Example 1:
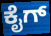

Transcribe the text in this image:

ಕೈಗ್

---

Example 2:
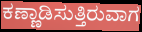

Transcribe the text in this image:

ಕಣ್ಣಾಡಿಸುತ್ತಿರುವಾಗ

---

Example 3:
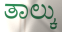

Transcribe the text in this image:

ತಾಲ್ಕು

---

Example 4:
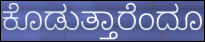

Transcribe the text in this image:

ಕೊಡುತ್ತಾರೆಂದೂ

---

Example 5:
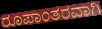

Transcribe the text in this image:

ರೂಪಾಂತರವಾಗಿ